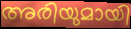
അരിയുമായി